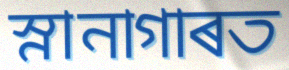
স্নানাগাৰত